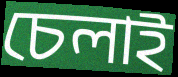
চেলাই